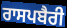
ਰਾਸਪਬੈਰੀ